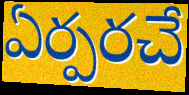
ఏర్పరచే